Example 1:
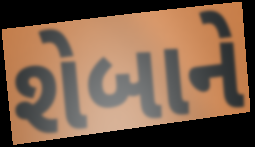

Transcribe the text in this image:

શેબાને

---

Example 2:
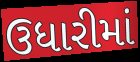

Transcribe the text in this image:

ઉધારીમાં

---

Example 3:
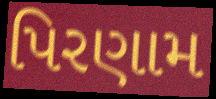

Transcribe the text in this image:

પિરણામ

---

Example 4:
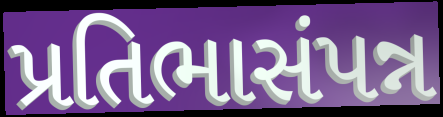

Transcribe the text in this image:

પ્રતિભાસંપન્ન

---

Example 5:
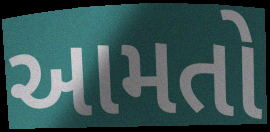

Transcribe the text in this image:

આમતો